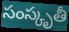
సంస్కృతీ